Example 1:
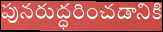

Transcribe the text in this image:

పునరుద్ధరించడానికి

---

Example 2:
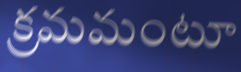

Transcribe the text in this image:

క్రమమంటూ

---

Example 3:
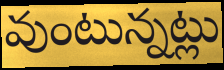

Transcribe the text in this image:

వుంటున్నట్లు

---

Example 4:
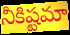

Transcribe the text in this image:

నీకిష్టమా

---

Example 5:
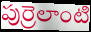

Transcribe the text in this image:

పుర్రెలాంటి